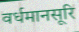
वर्धमानसूरि